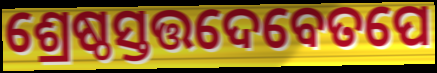
ଶ୍ରେଷ୍ଠସ୍ତତ୍ତଦେବେତପେ